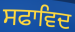
ਸਫਾਵਿਦ